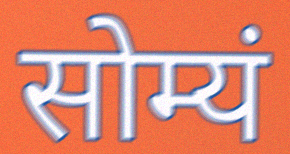
सोम्यं